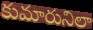
కుమారునిలా